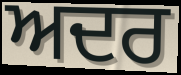
ਅਦਰ